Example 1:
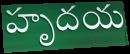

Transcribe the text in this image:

హృదయ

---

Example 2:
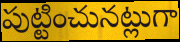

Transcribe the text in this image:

పుట్టించునట్లుగా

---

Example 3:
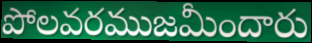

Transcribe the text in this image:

పోలవరముజమీందారు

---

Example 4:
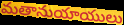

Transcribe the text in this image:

మతానుయాయులు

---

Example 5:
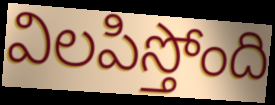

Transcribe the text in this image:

విలపిస్తోంది